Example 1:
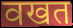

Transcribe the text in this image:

वखत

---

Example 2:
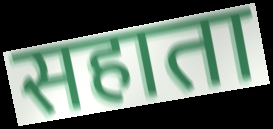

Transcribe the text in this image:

सहाता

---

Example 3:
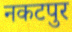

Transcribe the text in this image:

नकटपुर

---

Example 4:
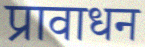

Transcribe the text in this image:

प्रावाधन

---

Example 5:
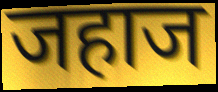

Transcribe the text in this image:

जहाज